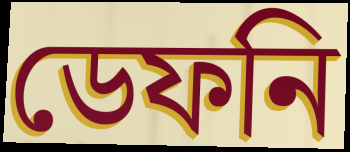
ডেফনি